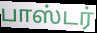
பாஸ்டர்